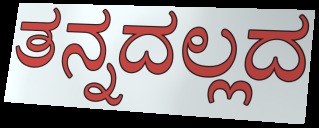
ತನ್ನದಲ್ಲದ